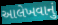
આલેખવાનું